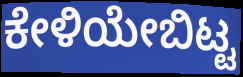
ಕೇಳಿಯೇಬಿಟ್ಟ